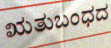
ಋತುಬಂಧದ